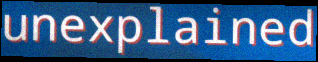
unexplained